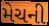
મેચની